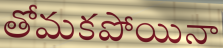
తోమకపోయినా